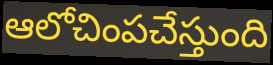
ఆలోచింపచేస్తుంది